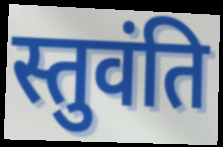
स्तुवंति